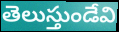
తెలుస్తుండేవి